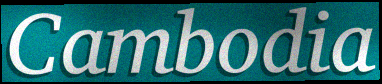
Cambodia